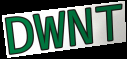
DWNT